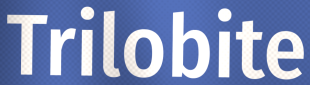
Trilobite